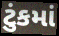
ટુંકમાં